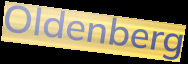
Oldenberg